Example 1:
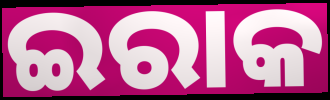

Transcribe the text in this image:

ଇରାକ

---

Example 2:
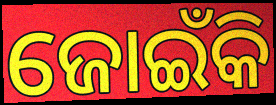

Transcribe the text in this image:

ଜୋଇଁକି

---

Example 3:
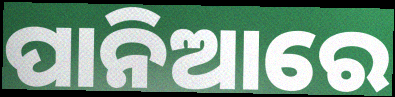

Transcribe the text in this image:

ପାନିଆରେ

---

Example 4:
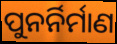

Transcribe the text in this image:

ପୁନର୍ନିର୍ମାଣ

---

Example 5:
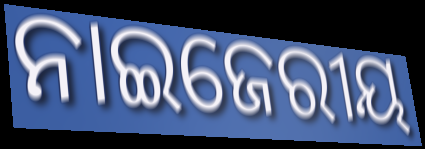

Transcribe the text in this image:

ନାଇଜେରୀୟ